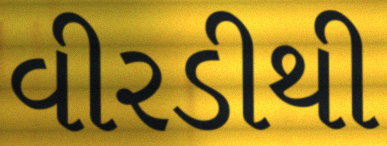
વીરડીથી